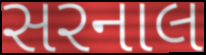
સરનાલ